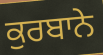
ਕੁਰਬਾਨੇ